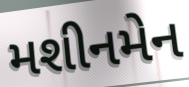
મશીનમેન